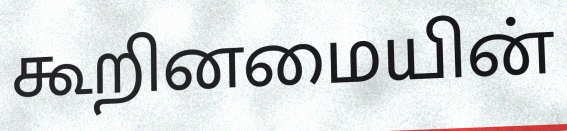
கூறினமையின்